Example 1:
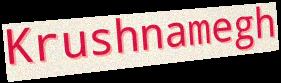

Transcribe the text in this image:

Krushnamegh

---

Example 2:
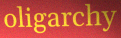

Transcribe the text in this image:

oligarchy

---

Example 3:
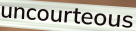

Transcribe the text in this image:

uncourteous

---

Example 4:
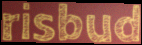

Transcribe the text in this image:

risbud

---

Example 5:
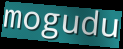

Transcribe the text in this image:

mogudu